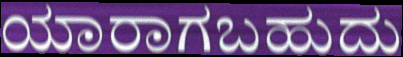
ಯಾರಾಗಬಹುದು